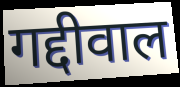
गद्दीवाल